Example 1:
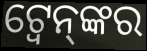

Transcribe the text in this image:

ଟ୍ୱେନ୍‌ଙ୍କର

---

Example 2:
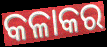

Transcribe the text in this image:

କଳାକର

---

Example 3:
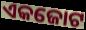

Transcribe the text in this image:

ଏକଜୋଟ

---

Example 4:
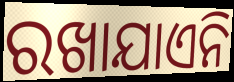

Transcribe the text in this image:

ରଖାଯାଏନି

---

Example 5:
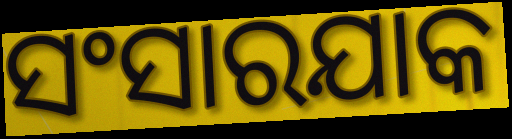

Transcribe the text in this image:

ସଂସାରଯାକ